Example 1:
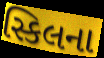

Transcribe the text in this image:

સ્કિલના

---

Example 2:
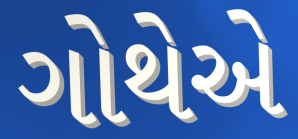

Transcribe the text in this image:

ગોથેએ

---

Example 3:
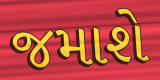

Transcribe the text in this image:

જમાશે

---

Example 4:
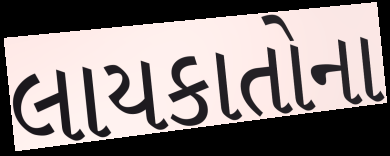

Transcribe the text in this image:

લાયકાતોના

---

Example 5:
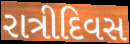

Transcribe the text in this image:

રાત્રીદિવસ